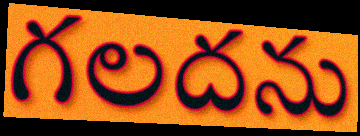
గలదను